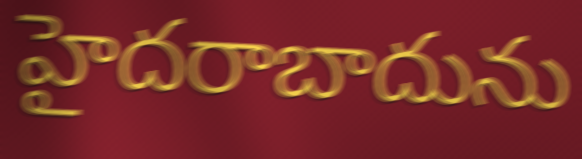
హైదరాబాదును